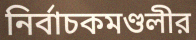
নির্বাচকমণ্ডলীর